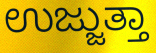
ಉಜ್ಜುತ್ತಾ